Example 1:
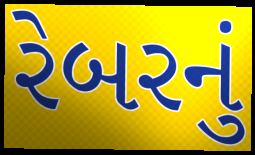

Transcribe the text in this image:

રેબરનું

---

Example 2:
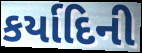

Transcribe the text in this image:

કર્યાદિની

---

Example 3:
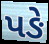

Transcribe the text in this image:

પઙે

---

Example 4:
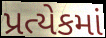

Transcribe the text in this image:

પ્રત્યેકમાં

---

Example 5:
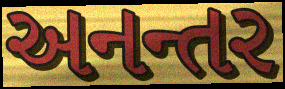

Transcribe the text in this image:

અનન્તર